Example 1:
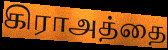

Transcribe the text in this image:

கிராஅத்தை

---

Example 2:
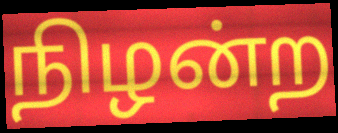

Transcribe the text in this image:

நிழன்ற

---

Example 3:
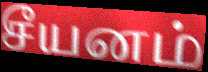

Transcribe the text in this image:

சீயனம்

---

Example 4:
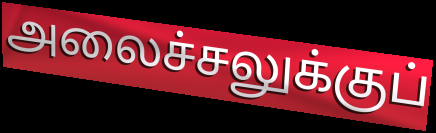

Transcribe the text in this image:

அலைச்சலுக்குப்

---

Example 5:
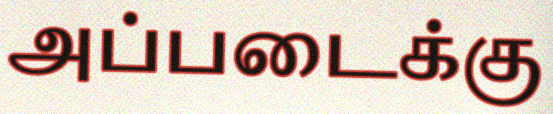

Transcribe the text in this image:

அப்படைக்கு